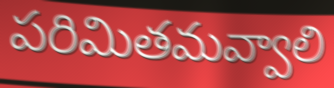
పరిమితమవ్వాలి